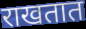
राखतात